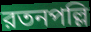
রতনপল্লি